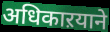
अधिकाऱयाने